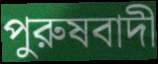
পুরুষবাদী